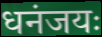
धनंजयः